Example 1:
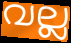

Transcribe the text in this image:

വല്ല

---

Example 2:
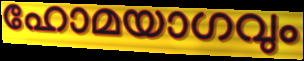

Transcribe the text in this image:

ഹോമയാഗവും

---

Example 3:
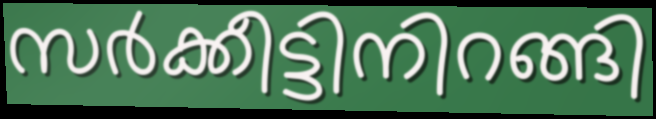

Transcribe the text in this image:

സർക്കീട്ടിനിറങ്ങി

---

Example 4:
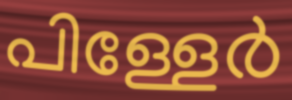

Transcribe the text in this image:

പിള്ളേർ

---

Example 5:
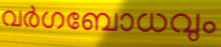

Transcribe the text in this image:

വർഗബോധവും